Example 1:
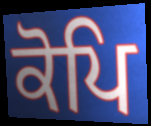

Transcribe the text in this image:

ਕੋਪਿ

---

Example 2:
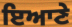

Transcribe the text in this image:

ਇਆਣੇ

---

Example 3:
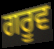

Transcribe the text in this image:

ਗਰੂਵ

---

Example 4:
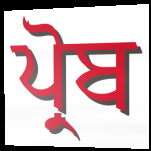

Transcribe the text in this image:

ਪ੍ਰੋਬ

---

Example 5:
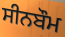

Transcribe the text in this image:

ਸੀਨਬੌਮ